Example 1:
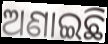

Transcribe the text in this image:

ଅଣାଇଛି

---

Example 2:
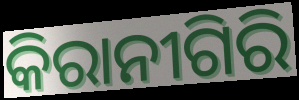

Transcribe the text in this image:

କିରାନୀଗିରି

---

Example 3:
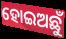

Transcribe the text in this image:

ହୋଇଅଛୁଁ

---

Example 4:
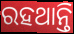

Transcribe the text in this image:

ରହଥାନ୍ତି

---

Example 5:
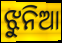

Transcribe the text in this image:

ଝୁନିଆ